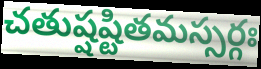
చతుష్షష్టితమస్సర్గః